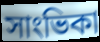
সাংভিকা